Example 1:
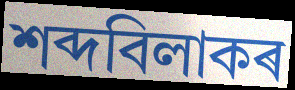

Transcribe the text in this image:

শব্দবিলাকৰ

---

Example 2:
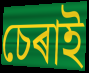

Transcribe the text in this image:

চেৰাই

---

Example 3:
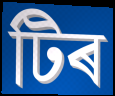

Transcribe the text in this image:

টিৰ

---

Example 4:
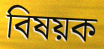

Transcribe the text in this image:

বিষয়ক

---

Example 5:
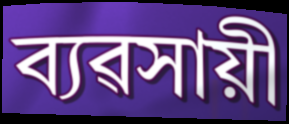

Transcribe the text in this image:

ব্যৱসায়ী